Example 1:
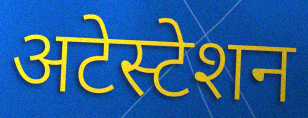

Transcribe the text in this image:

अटेस्टेशन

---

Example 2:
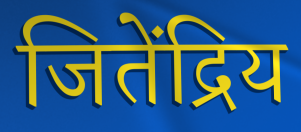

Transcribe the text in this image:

जितेंद्रिय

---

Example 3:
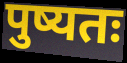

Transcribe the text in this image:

पुष्यतः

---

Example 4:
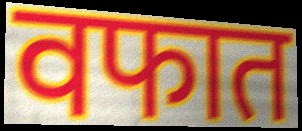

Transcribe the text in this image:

वफात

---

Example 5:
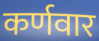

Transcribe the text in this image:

कर्णवार